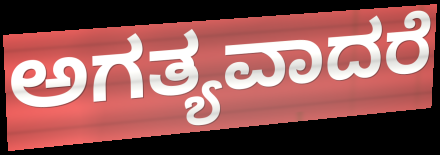
ಅಗತ್ಯವಾದರೆ